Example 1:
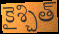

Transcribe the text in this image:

కైశ్చిత్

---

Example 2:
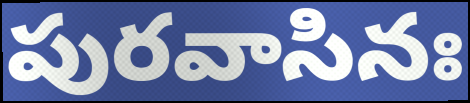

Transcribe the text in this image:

పురవాసినః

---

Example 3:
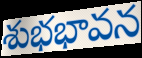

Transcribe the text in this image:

శుభభావన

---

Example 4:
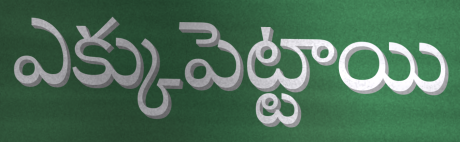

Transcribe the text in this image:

ఎక్కుపెట్టాయి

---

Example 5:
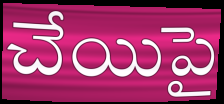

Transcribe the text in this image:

చేయిపై